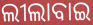
ଲୀଲାବାଇ